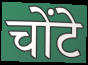
चोंटे